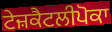
ਟੇਜ਼ਕੈਟਲੀਪੋਕਾ